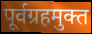
पूर्वग्रहमुक्त